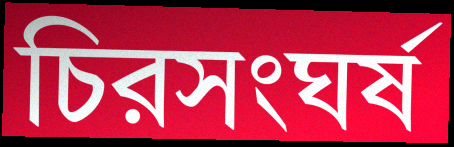
চিরসংঘর্ষ